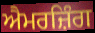
ਐਮਰਜ਼ਿੰਗ